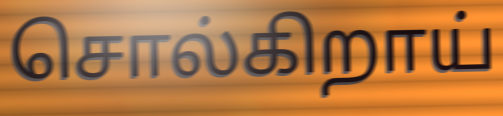
சொல்கிறாய்